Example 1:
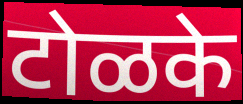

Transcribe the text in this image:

टोळके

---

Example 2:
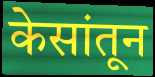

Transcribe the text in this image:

केसांतून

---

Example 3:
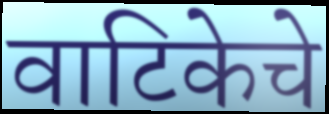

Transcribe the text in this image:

वाटिकेचे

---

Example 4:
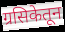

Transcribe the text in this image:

ग्रसिकेतून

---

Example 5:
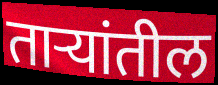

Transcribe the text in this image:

ताऱ्यांतील